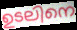
ഉടലിനെ